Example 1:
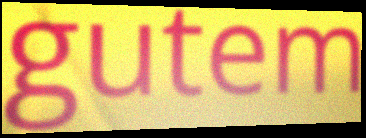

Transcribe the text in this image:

gutem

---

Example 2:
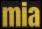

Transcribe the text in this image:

mia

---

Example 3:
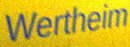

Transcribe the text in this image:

Wertheim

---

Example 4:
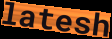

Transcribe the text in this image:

latesh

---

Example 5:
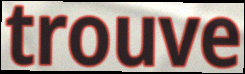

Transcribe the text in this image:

trouve